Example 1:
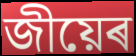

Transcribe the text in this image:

জীয়েৰ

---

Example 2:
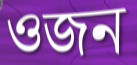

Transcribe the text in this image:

ওজন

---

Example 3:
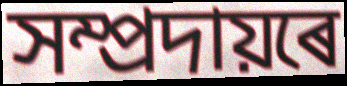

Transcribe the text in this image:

সম্প্ৰদায়ৰে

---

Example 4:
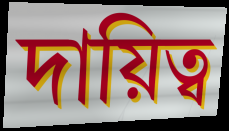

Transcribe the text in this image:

দায়িত্ব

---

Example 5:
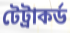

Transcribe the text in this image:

টেট্ৰাকৰ্ড